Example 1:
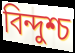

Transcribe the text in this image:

বিন্দুশ্চ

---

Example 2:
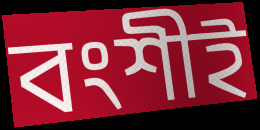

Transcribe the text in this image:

বংশীই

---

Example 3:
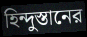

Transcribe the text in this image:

হিন্দুস্তানের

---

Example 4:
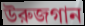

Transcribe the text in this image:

উরুজগান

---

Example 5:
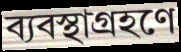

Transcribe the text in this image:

ব্যবস্থাগ্রহণে